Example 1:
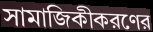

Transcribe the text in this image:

সামাজিকীকরণের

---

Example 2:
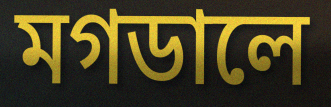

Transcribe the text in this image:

মগডালে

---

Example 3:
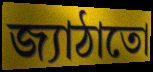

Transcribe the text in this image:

জ্যাঠাতো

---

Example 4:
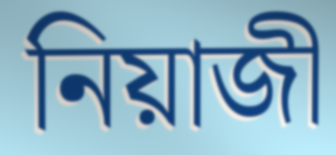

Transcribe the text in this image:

নিয়াজী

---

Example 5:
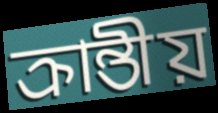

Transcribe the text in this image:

ক্রান্তীয়